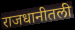
राजधानीतली